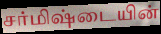
சர்மிஷ்டையின்